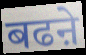
बढऩे